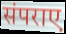
संपराए